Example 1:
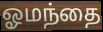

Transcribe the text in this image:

ஓமந்தை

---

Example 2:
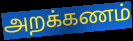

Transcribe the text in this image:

அறக்கணம்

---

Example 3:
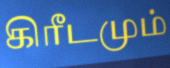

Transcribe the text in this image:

கிரீடமும்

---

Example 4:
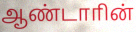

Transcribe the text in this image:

ஆண்டாரின்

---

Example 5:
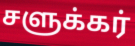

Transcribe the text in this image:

சளுக்கர்